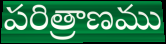
పరిత్రాణము